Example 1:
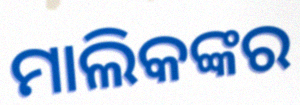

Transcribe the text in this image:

ମାଲିକଙ୍କର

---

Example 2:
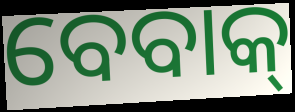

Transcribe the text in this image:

ବେବାକ୍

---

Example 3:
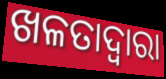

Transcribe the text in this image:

ଖଳତାଦ୍ଵାରା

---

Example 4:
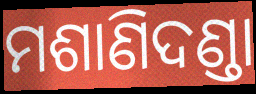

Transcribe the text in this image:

ମଶାଣିଦଣ୍ଡା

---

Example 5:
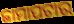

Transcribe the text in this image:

ଜାମାପଟାର